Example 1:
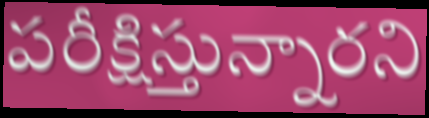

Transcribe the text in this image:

పరీక్షిస్తున్నారని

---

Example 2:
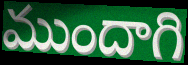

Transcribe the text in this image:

ముందాగి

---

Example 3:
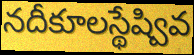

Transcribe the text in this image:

నదీకూలస్థేష్వివ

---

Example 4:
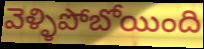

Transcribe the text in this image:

వెళ్ళిపోబోయింది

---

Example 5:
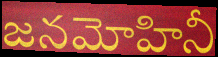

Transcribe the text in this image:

జనమోహినీ